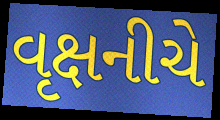
વૃક્ષનીચે